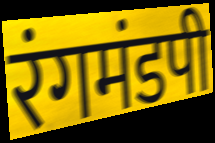
रंगमंडपी